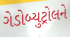
ગેડોબ્યુટ્રોલને